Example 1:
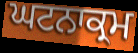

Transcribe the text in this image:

ਘਟਨਾਕ੍ਰਮ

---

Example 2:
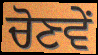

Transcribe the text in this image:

ਚੋਣਵੇਂ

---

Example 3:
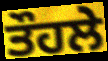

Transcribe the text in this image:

ਤੌਹਲੇ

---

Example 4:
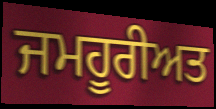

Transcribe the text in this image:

ਜਮਹੂਰੀਅਤ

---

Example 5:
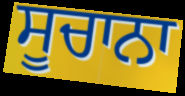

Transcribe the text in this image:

ਸੂਚਾਨਾ